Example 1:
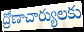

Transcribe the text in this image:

ద్రోణాచార్యులకు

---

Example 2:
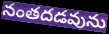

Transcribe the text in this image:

నంతదడవును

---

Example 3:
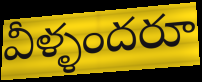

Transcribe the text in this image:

వీళ్ళందరూ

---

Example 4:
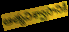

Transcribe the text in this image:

ఆత్మవిశ్వాసానికీ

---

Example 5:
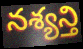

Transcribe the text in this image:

నశ్యన్తి